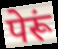
पेरूं